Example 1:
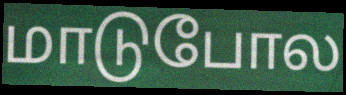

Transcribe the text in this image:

மாடுபோல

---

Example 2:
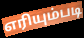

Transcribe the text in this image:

எரியும்படி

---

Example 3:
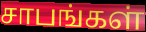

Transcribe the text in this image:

சாபங்கள்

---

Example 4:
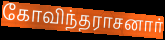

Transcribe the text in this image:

கோவிந்தராசனார்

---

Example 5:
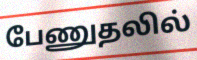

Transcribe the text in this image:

பேணுதலில்